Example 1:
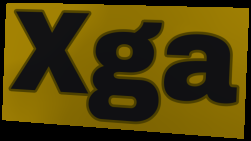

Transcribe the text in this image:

Xga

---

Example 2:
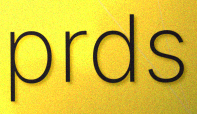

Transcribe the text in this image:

prds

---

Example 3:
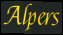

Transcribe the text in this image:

Alpers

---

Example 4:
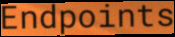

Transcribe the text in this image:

Endpoints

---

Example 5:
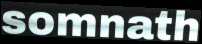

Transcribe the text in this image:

somnath